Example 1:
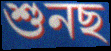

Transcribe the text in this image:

শুনছ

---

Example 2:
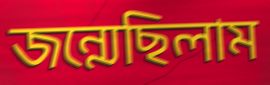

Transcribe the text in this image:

জন্মেছিলাম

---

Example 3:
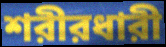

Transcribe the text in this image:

শরীরধারী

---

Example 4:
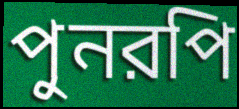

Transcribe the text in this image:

পুনরপি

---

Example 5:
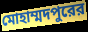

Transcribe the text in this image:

মোহাম্মদপুরের